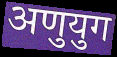
अणुयुग